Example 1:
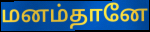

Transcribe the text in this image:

மனம்தானே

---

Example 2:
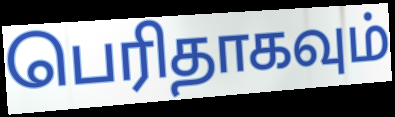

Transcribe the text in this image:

பெரிதாகவும்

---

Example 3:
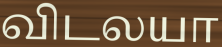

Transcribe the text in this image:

விடலயா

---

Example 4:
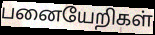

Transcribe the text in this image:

பனையேறிகள்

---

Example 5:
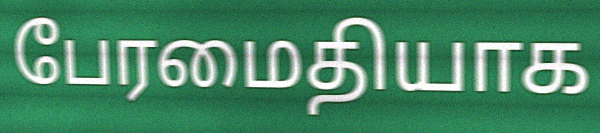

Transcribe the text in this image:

பேரமைதியாக